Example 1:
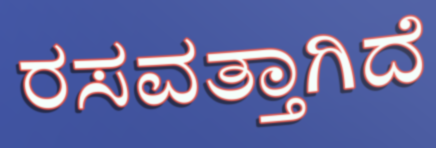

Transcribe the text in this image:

ರಸವತ್ತಾಗಿದೆ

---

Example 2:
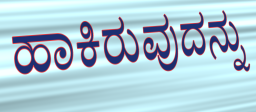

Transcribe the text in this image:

ಹಾಕಿರುವುದನ್ನು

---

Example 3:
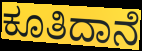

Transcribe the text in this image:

ಕೂತಿದಾನೆ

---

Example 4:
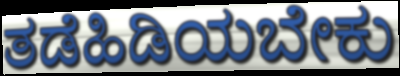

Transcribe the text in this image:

ತಡೆಹಿಡಿಯಬೇಕು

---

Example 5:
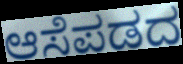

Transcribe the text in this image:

ಆಸೆಪಡದ